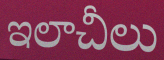
ఇలాచీలు